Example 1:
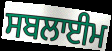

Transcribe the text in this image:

ਸਬਲਾਈਮ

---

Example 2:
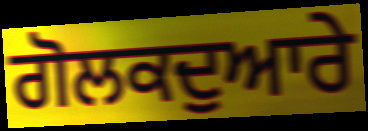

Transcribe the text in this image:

ਗੋਲਕਦੁਆਰੇ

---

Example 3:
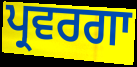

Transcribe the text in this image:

ਪ੍ਰਵਰਗਾ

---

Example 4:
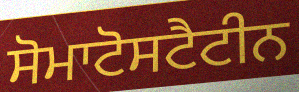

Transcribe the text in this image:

ਸੋਮਾਟੋਸਟੈਟੀਨ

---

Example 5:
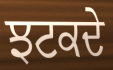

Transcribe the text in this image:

ਝਟਕਦੇ